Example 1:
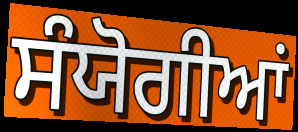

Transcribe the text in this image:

ਸੰਯੋਗੀਆਂ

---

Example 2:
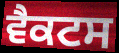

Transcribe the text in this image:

ਵੈਕਟਸ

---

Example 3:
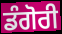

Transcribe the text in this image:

ਡੰਗੋਰੀ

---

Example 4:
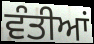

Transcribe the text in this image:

ਵੰਤੀਆਂ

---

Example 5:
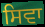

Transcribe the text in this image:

ਸਿਵਾ